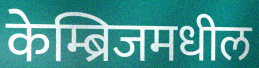
केम्ब्रिजमधील